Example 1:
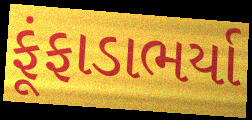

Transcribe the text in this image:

ફૂંફાડાભર્યા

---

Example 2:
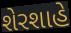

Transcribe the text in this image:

શેરશાહે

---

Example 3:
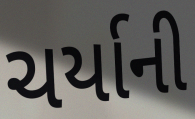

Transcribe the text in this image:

ચર્યાની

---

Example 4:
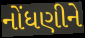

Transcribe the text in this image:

નોંધણીને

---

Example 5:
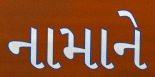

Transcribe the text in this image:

નામાને